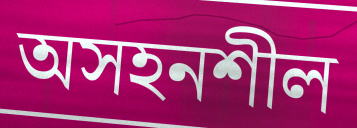
অসহনশীল